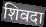
शिवदा